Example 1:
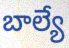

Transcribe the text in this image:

బాల్యే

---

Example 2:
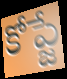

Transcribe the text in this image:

కోప్జే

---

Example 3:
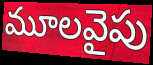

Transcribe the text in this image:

మూలవైపు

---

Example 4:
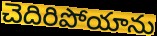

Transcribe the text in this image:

చెదిరిపోయాను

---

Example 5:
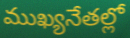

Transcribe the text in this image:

ముఖ్యనేతల్లో